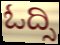
ಓದ್ಸಿ